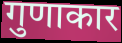
गुणाकार